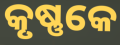
କୃଷ୍ଣକେ